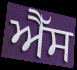
ਐੱਸ